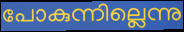
പോകുന്നില്ലെന്നു